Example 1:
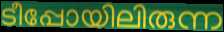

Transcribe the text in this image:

ടീപ്പോയിലിരുന്ന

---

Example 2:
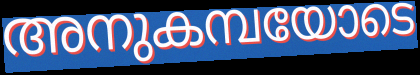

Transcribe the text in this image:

അനുകമ്പയോടെ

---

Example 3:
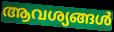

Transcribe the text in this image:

ആവശ്യങ്ങൾ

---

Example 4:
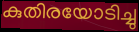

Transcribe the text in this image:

കുതിരയോടിച്ചു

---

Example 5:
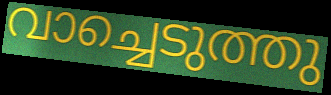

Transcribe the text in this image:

വാച്ചെടുത്തു